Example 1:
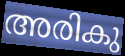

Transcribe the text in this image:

അരികു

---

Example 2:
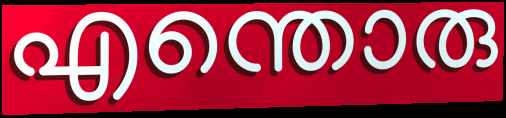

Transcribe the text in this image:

എന്തൊരു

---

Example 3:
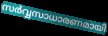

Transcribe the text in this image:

സർവ്വസാധാരണമായി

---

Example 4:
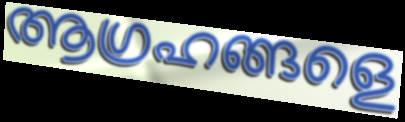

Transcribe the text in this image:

ആഗ്രഹങ്ങളെ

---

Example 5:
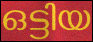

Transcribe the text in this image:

ഒട്ടിയ